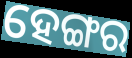
ହେଙ୍ଗର